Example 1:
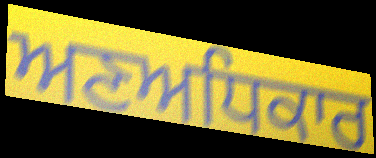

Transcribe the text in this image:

ਅਣਅਧਿਕਾਰ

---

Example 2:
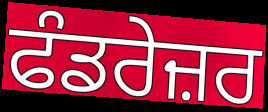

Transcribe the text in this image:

ਫੰਡਰੇਜ਼ਰ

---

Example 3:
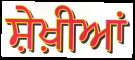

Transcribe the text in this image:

ਸ਼ੇਖ਼ੀਆਂ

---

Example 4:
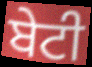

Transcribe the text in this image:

ਬੇਟੀ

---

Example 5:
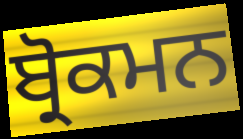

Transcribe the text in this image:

ਬ੍ਰੋਕਮਨ